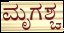
ಮೃಗಶ್ಚ